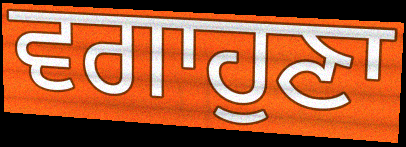
ਵਗਾਹੁਣਾ